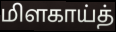
மிளகாய்த்